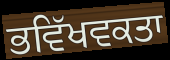
ਭਵਿੱਖਵਕਤਾ